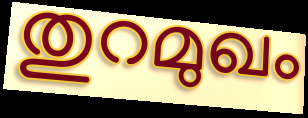
തുറമുഖം